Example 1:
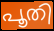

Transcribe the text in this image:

പൂതി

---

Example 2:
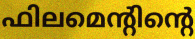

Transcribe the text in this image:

ഫിലമെന്റിന്റെ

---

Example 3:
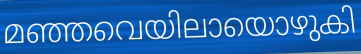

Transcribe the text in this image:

മഞ്ഞവെയിലായൊഴുകി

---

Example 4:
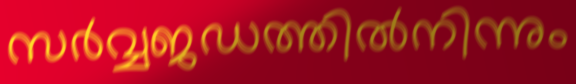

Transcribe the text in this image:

സർവ്വജഡത്തിൽനിന്നും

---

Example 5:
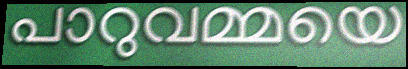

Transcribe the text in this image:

പാറുവമ്മയെ